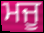
ਮਜੂ